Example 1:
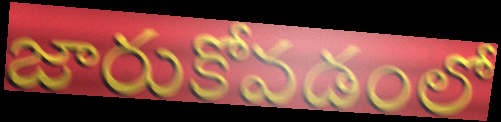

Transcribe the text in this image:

జారుకోవడంలో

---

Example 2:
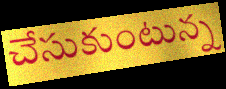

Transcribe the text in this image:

చేసుకుంటున్న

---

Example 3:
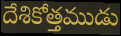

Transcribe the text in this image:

దేశికోత్తముడు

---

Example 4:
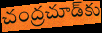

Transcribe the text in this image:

చంద్రచూడ్‌కు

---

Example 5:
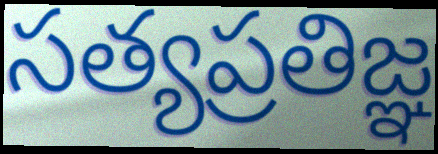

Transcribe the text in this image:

సత్యప్రతిజ్ఞ